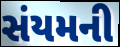
સંયમની